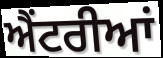
ਐਂਟਰੀਆਂ